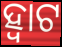
ହ୍ଵାଟ